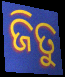
ଜିତୁ